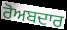
ਰੋਅਬਦਾਰ